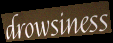
drowsiness